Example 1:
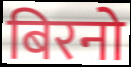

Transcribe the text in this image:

बिरनो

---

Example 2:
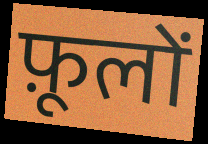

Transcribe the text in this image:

फ़ूलों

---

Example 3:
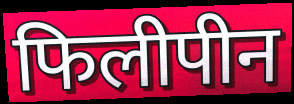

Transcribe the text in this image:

फिलीपीन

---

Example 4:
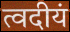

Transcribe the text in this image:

त्वदीयं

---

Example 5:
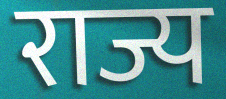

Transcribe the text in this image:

राज्य